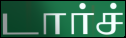
டார்ச்